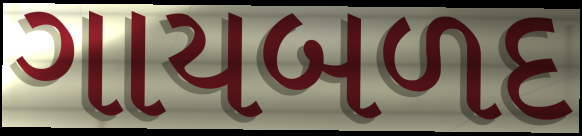
ગાયબળદ